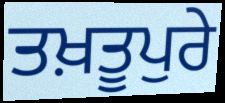
ਤਖ਼ਤੂਪੁਰੇ